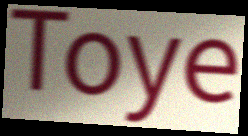
Toye